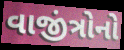
વાજીંત્રોનો